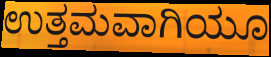
ಉತ್ತಮವಾಗಿಯೂ